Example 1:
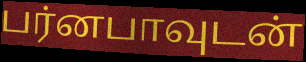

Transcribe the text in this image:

பர்னபாவுடன்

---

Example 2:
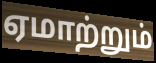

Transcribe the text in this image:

ஏமாற்றும்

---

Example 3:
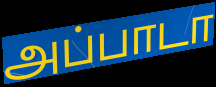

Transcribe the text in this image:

அப்பாடா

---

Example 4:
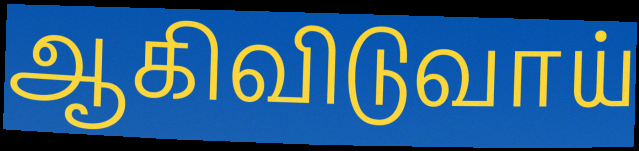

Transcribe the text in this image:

ஆகிவிடுவாய்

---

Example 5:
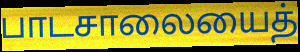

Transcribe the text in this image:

பாடசாலையைத்